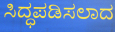
ಸಿದ್ಧಪಡಿಸಲಾದ